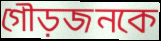
গৌড়জনকে